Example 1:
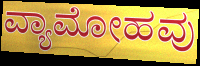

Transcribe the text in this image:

ವ್ಯಾಮೋಹವು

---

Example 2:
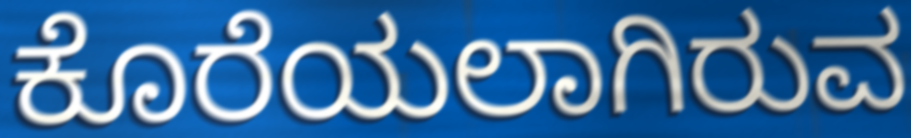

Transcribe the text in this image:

ಕೊರೆಯಲಾಗಿರುವ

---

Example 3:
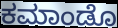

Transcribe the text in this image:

ಕಮಾಂಡೊ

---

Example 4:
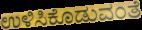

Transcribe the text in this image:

ಉಳಿಸಿಕೊಡುವಂತೆ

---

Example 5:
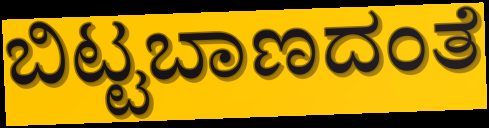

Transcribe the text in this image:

ಬಿಟ್ಟಬಾಣದಂತೆ